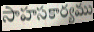
సాహసకార్యము